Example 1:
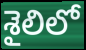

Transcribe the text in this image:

శైలిలో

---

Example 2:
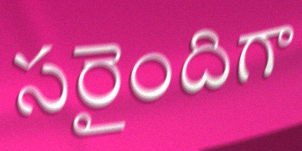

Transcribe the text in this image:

సరైందిగా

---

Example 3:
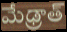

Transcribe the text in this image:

మేఢ్రాత్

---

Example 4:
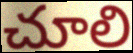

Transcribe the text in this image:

చూలి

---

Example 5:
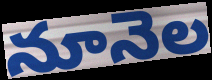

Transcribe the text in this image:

నూనెల